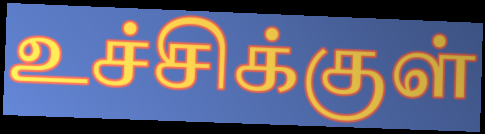
உச்சிக்குள்